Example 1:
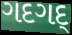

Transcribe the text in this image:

ગદગદ્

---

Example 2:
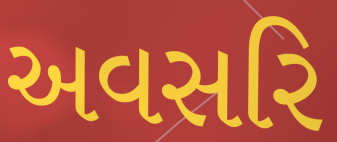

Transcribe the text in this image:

અવસરિ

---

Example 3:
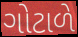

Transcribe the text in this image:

ગોટાળે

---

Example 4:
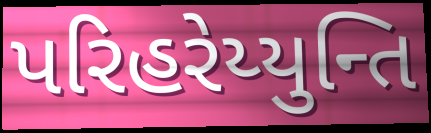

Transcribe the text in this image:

પરિહરેય્યુન્તિ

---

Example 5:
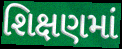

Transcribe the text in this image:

શિક્ષણમાં